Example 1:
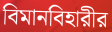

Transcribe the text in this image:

বিমানবিহারীর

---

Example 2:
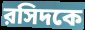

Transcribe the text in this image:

রসিদকে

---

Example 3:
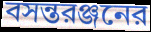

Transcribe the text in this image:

বসন্তরঞ্জনের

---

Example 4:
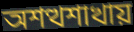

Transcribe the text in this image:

অশত্থশাখায়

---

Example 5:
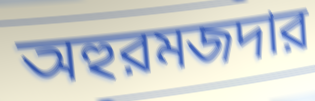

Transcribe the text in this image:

অহুরমজদার